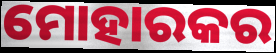
ମୋହାରକର